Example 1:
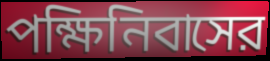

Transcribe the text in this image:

পক্ষিনিবাসের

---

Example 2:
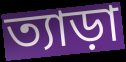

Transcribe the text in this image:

ত্যাড়া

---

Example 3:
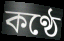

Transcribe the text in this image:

কণ্ঠে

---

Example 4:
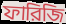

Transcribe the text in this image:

ফারিজি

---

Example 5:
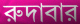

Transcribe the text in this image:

রুদাবার